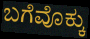
ಬಗೆವೊಕ್ಕು